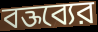
বক্তব্যের